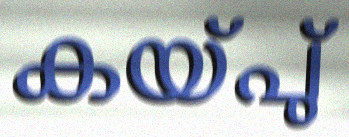
കയ്പു്